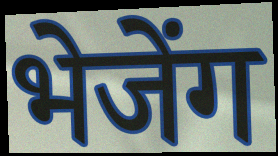
भेजेंग